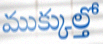
ముక్కుల్తో